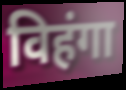
विहंगा